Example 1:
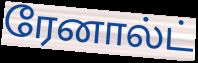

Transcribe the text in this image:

ரேனால்ட்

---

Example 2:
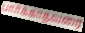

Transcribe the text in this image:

பார்க்காதவரை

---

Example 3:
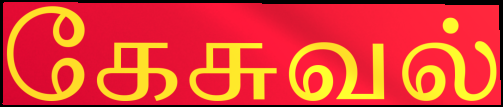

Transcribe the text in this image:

கேசுவல்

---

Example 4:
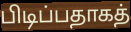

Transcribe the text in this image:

பிடிப்பதாகத்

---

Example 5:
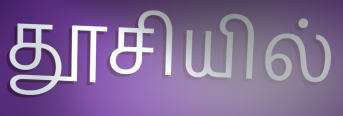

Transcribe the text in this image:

தூசியில்